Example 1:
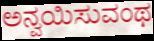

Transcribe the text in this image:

ಅನ್ವಯಿಸುವಂಥ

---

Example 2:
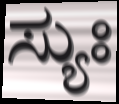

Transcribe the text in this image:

ಸ್ಯುಃ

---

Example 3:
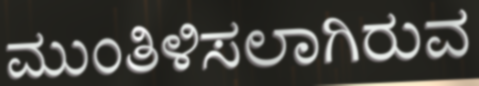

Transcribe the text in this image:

ಮುಂತಿಳಿಸಲಾಗಿರುವ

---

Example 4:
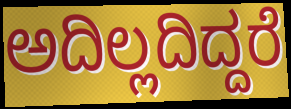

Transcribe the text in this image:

ಅದಿಲ್ಲದಿದ್ದರೆ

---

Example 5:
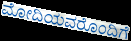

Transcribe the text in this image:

ಮೋದಿಯವರೊಂದಿಗೆ